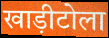
खाड़ीटोला